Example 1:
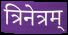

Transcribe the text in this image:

त्रिनेत्रम्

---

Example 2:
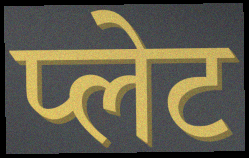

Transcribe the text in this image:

प्लेट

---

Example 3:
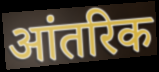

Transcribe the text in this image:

आंतरिक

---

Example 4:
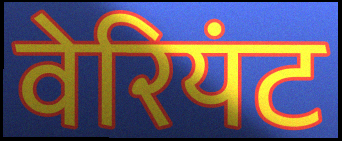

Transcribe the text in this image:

वेरियंट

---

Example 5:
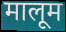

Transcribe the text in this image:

मालूम